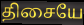
திசையே